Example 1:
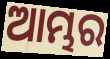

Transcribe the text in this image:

ଆମ୍ଭର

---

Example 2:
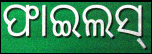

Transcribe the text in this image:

ଫାଇଲସ୍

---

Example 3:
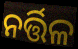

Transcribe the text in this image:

ନର୍ତ୍ତିଳ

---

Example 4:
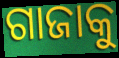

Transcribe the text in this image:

ଗାଜାକୁ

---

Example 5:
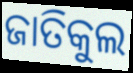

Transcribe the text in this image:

ଜାତିକୁଲ